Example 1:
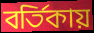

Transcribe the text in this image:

বর্তিকায়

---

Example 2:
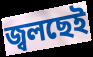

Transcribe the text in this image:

জ্বলছেই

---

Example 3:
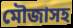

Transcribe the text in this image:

মৌজাসহ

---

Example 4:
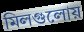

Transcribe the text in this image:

মিলগুলোয়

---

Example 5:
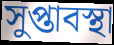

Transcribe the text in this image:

সুপ্তাবস্থা